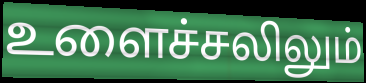
உளைச்சலிலும்